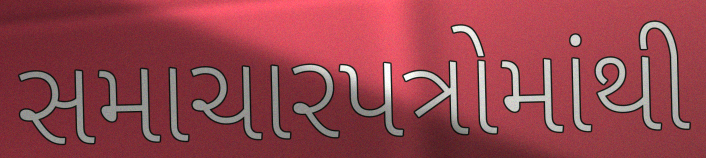
સમાચારપત્રોમાંથી